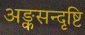
अङ्कसन्दृष्टि